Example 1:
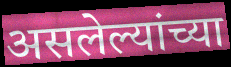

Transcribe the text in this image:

असलेल्यांच्या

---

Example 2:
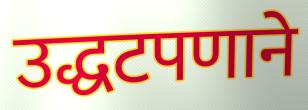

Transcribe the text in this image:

उद्धटपणाने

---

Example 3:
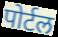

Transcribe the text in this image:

पोर्टल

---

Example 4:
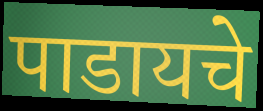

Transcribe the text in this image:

पाडायचे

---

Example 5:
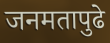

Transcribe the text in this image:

जनमतापुढे